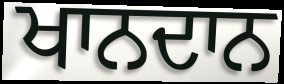
ਖਾਨਦਾਨ